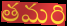
తమరి